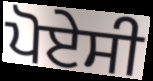
ਪੋਏਸੀ